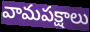
వామపక్షాలు